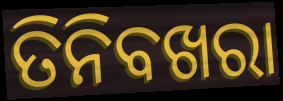
ତିନିବଖରା